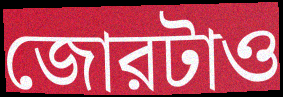
জোরটাও